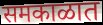
समकाळात